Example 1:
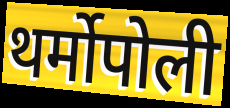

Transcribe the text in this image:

थर्मोपोली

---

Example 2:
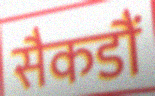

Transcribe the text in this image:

सैकडौं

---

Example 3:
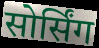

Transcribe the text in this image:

सोर्सिंग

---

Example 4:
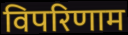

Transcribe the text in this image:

विपरिणाम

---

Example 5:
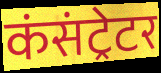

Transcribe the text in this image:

कंसंट्रेटर